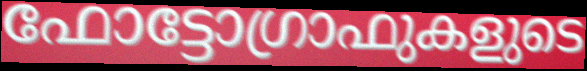
ഫോട്ടോഗ്രാഫുകളുടെ